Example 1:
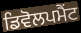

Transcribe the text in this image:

ਡਿਵੋਲਪਮੈਂਟ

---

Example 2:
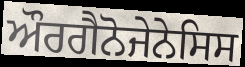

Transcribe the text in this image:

ਔਰਗੈਨੋਜੇਨੇਸਿਸ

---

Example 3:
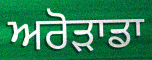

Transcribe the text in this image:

ਅਰੋੜਾਡਾ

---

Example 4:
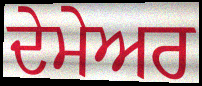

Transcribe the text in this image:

ਦੇਮੇਅਰ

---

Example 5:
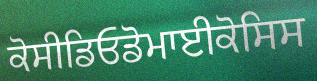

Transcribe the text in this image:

ਕੋਸੀਡਿਓਡੋਮਾਈਕੋਸਿਸ